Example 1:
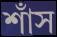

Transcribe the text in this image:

শাঁস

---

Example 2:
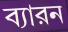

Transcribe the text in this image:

ব্যারন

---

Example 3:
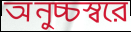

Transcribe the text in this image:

অনুচ্চস্বরে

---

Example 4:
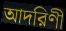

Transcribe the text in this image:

আদরিণী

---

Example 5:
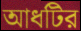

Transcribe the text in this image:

আধটির